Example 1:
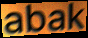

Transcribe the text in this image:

abak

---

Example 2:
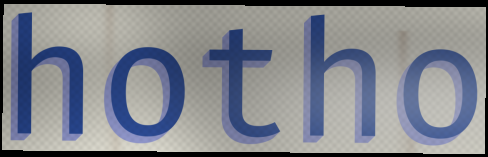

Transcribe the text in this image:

hotho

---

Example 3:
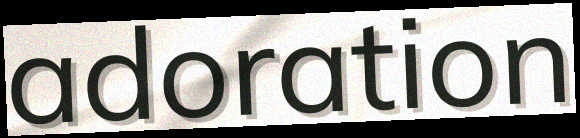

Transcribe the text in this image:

adoration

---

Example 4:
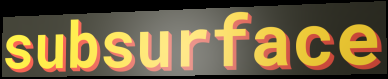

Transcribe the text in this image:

subsurface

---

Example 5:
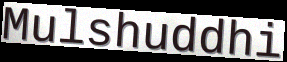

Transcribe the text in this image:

Mulshuddhi